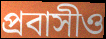
প্রবাসীও